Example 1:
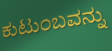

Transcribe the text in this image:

ಕುಟುಂಬವನ್ನು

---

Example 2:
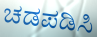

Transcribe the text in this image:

ಚಡಪಡಿಸಿ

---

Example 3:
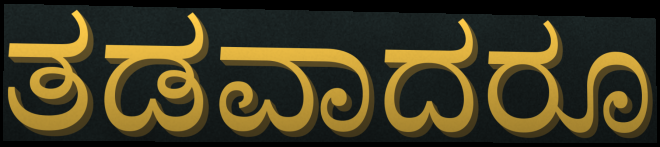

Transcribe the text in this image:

ತಡವಾದರೂ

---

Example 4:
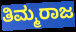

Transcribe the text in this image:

ತಿಮ್ಮರಾಜ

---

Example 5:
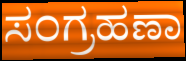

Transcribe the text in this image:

ಸಂಗ್ರಹಣಾ